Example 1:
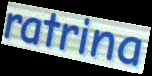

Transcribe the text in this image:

ratrina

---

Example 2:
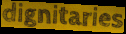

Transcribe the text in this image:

dignitaries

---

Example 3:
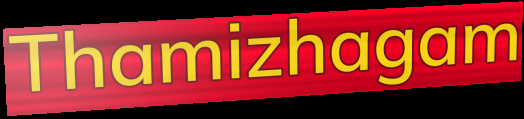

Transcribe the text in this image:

Thamizhagam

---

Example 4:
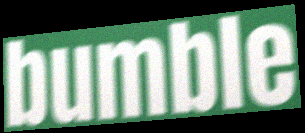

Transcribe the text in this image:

bumble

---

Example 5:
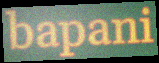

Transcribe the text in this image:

bapani